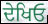
ਦੇਖਿਓ